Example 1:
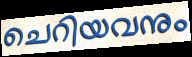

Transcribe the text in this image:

ചെറിയവനും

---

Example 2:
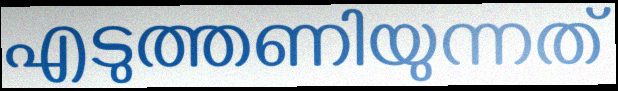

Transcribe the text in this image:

എടുത്തണിയുന്നത്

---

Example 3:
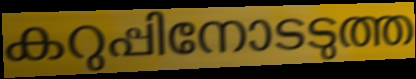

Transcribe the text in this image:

കറുപ്പിനോടടുത്ത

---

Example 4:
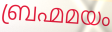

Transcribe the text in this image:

ബ്രഹ്മമയം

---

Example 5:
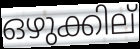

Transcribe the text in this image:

ഒഴുക്കില്